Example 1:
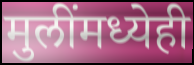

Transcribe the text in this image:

मुलींमध्येही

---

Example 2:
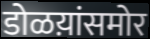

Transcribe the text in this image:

डोळय़ांसमोर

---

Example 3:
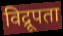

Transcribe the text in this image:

विद्रूपता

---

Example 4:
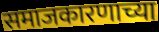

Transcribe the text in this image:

समाजकारणाच्या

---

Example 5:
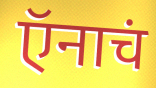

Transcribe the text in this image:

ऍनाचं